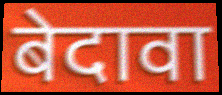
बेदावा